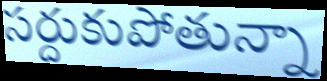
సర్దుకుపోతున్నా